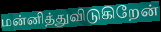
மன்னித்துவிடுகிறேன்